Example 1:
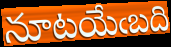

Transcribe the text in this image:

నూటయేఁబది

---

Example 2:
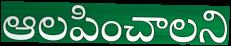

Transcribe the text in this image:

ఆలపించాలని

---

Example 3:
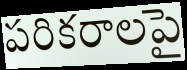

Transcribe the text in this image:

పరికరాలపై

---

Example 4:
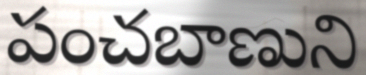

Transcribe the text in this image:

పంచబాణుని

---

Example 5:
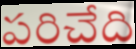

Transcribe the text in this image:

పరిచేది